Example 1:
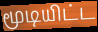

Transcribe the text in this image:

மூடியிட்ட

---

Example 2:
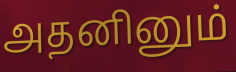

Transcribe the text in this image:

அதனினும்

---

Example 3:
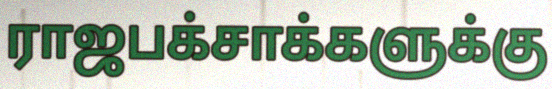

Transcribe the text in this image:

ராஜபக்சாக்களுக்கு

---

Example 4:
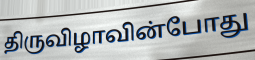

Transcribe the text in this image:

திருவிழாவின்போது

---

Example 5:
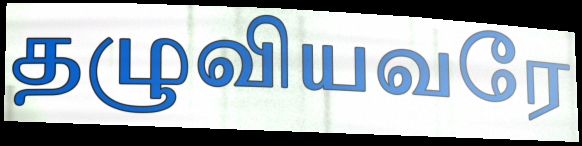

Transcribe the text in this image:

தழுவியவரே